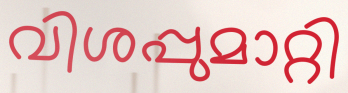
വിശപ്പുമാറ്റി